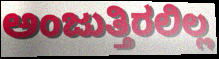
ಅಂಜುತ್ತಿರಲಿಲ್ಲ